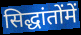
सिद्धांतोंमें